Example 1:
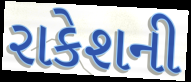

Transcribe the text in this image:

રાકેશની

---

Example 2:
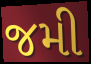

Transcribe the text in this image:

જમી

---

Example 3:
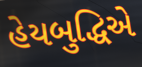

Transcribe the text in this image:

હેયબુદ્ધિએ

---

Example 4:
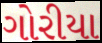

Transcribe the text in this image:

ગોરીયા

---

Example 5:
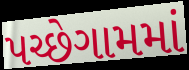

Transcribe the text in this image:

પચ્છેગામમાં